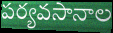
పర్యవసానాల